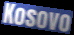
Kosovo